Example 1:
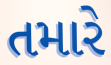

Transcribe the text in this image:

તમારે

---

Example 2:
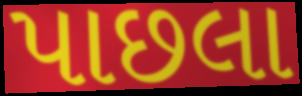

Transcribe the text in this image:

પાછલા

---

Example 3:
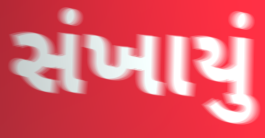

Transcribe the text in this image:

સંખાયું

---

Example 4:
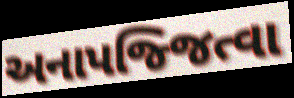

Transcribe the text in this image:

અનાપજ્જિત્વા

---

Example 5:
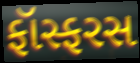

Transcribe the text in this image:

ફૉસ્ફરસ